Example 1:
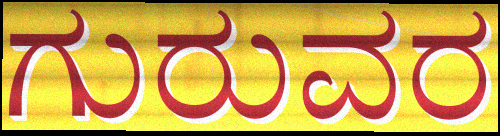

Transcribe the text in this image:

ಗುರುವರ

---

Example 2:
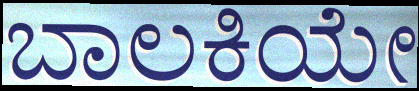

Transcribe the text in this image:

ಬಾಲಕಿಯೇ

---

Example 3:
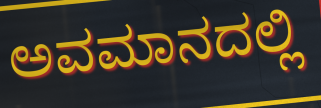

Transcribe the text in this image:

ಅವಮಾನದಲ್ಲಿ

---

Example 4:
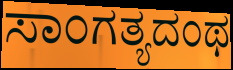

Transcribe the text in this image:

ಸಾಂಗತ್ಯದಂಥ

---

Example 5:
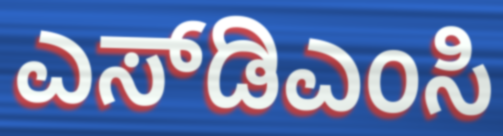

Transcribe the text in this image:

ಎಸ್‌ಡಿಎಂಸಿ